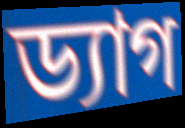
ড্যাগ